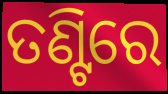
ତଣ୍ଟିରେ